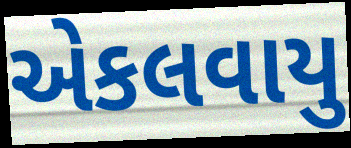
એકલવાયુ